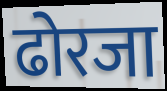
ढोरजा